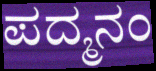
ಪದ್ಮನಂ